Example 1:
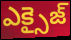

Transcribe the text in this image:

ఎక్సైజ్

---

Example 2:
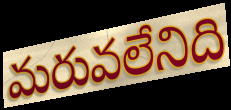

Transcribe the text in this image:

మరువలేనిది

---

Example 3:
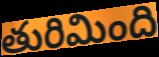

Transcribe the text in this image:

తురిమింది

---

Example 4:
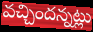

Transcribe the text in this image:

వచ్చిందన్నట్లు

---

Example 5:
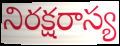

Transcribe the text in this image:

నిరక్షరాస్య